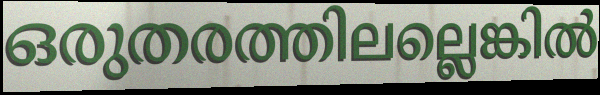
ഒരുതരത്തിലല്ലെങ്കിൽ